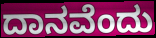
ದಾನವೆಂದು